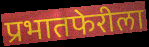
प्रभातफेरीला